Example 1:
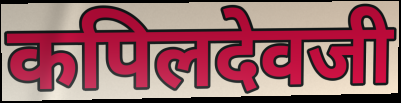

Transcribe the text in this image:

कपिलदेवजी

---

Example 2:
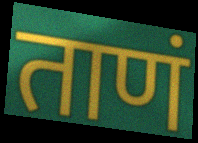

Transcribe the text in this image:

ताणं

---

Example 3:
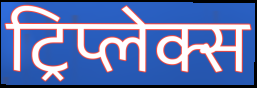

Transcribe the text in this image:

ट्रिप्लेक्स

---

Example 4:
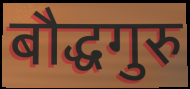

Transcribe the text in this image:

बौद्धगुरु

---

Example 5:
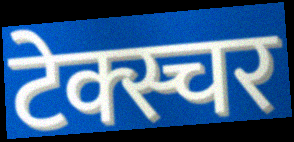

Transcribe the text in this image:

टेक्स्चर